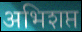
अभिशप्त